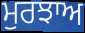
ਮੁਰਝਾਅ